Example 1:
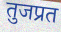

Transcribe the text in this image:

तुजप्रत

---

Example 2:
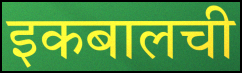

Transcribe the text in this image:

इकबालची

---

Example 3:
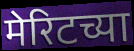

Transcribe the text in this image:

मेरिटच्या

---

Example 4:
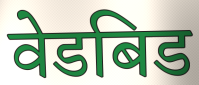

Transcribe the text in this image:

वेडबिड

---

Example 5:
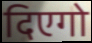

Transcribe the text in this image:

दिएगो